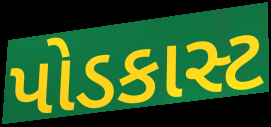
પોડકાસ્ટ